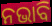
ନଭାବି